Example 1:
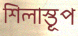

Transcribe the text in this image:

শিলাস্তূপ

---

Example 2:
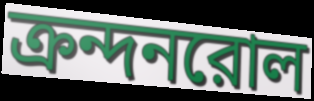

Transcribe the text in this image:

ক্রন্দনরোল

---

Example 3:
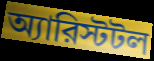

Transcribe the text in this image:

অ্যারিস্টটল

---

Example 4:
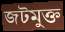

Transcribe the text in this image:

জটমুক্ত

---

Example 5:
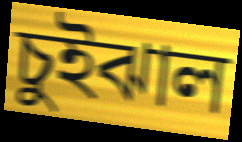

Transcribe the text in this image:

চুইঝাল